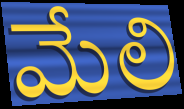
మేలి